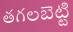
తగలబెట్టి